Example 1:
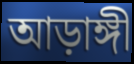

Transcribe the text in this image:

আড়াঙ্গী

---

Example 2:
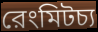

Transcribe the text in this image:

রেংমিটচ্য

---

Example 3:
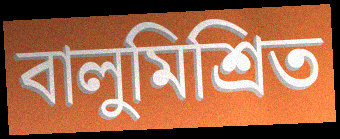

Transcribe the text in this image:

বালুমিশ্রিত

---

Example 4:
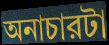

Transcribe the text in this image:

অনাচারটা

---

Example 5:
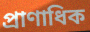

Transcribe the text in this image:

প্রাণাধিক